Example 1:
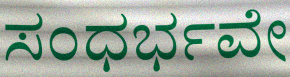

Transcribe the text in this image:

ಸಂಧರ್ಭವೇ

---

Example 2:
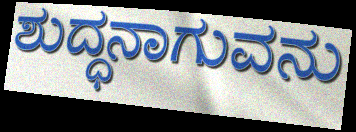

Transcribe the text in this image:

ಶುದ್ಧನಾಗುವನು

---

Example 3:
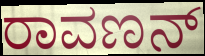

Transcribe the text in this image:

ರಾವಣನ್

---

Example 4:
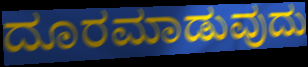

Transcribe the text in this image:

ದೂರಮಾಡುವುದು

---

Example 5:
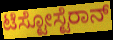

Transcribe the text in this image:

ಟೆಸ್ಟೋಸ್ಟೆರಾನ್